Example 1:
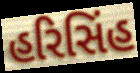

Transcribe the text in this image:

હરિસિંહ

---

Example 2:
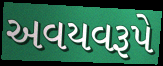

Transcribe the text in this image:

અવયવરૂપે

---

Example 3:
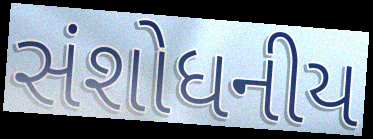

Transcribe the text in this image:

સંશોધનીય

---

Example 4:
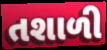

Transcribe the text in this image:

તશાળી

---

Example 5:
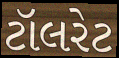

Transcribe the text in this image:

ટૉલરેટ